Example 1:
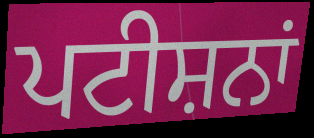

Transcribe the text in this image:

ਪਟੀਸ਼ਨਾਂ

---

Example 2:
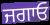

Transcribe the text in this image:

ਜਗਾਓ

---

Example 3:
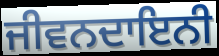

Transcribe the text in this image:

ਜੀਵਨਦਾਇਨੀ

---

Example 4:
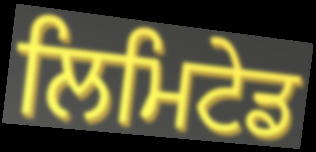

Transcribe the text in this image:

ਲਿਮਿਟੇਡ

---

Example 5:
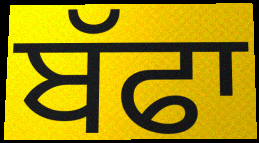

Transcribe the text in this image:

ਬੱਫਾ